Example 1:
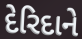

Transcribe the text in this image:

દેરિદાને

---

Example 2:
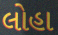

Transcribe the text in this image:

લોહા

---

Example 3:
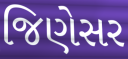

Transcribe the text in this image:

જિણેસર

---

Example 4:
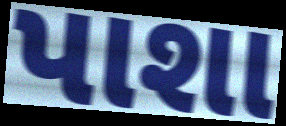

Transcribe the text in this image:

પાશા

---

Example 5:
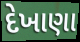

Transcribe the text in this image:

દેખાણા